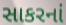
સાકરનાં